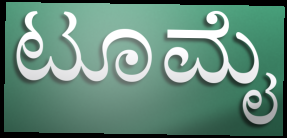
ಟೂಮೈ